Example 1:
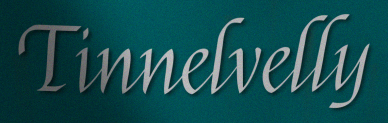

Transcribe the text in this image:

Tinnelvelly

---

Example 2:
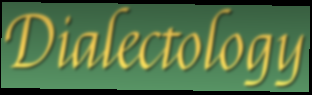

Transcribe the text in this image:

Dialectology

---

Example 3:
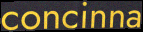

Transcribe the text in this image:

concinna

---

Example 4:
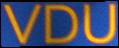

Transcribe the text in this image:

VDU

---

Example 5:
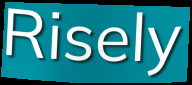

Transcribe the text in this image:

Risely